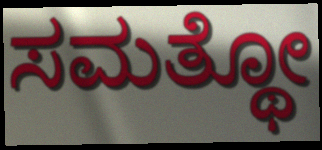
ಸಮತ್ಥೋ